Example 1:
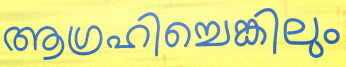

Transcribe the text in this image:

ആഗ്രഹിച്ചെങ്കിലും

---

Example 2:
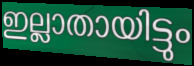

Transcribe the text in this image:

ഇല്ലാതായിട്ടും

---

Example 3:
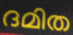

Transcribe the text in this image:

ദമിത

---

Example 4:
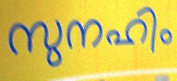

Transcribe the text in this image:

സുനഹിം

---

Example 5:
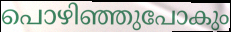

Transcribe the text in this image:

പൊഴിഞ്ഞുപോകും